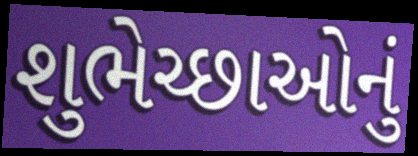
શુભેચ્છાઓનું